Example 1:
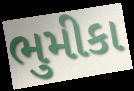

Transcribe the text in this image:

ભુમીકા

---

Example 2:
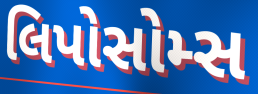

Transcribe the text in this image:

લિપોસોમ્સ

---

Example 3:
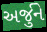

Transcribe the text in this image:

અર્જુને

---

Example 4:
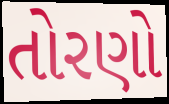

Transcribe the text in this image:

તોરણો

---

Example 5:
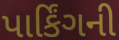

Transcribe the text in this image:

પાર્કિંગની